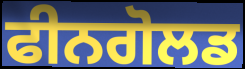
ਫੀਨਗੋਲਡ